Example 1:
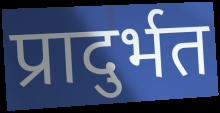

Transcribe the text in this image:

प्रादुर्भत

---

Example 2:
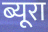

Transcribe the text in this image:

ब्यूरा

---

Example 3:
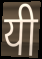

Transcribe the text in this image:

यी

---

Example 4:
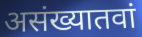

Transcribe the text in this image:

असंख्यातवां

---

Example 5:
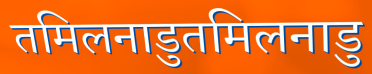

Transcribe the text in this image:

तमिलनाडुतमिलनाडु